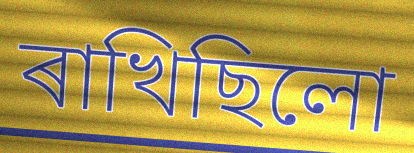
ৰাখিছিলো